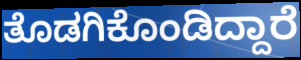
ತೊಡಗಿಕೊಂಡಿದ್ದಾರೆ